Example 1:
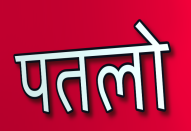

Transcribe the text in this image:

पतलो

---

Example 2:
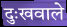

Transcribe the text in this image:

दुःखवाले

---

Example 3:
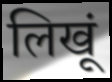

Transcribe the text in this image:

लिखूं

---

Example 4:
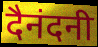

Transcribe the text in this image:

दैनंदनी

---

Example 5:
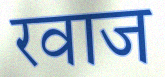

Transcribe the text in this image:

रवाज